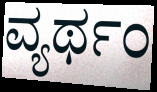
ವ್ಯರ್ಥಂ